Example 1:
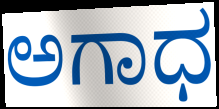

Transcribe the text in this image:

ಅಗಾಧ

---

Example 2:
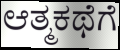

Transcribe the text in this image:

ಆತ್ಮಕಥೆಗೆ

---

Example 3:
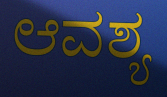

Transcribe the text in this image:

ಆವಶ್ಯ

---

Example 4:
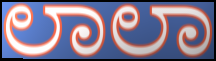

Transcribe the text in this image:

ಲಾಲಾ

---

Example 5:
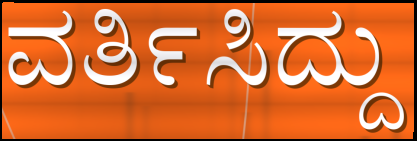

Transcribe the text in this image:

ವರ್ತಿಸಿದ್ದು